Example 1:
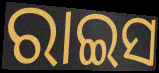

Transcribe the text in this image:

ରାଇସ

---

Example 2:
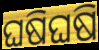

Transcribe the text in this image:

ଘଷିଘଷି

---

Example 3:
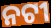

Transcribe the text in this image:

ନଟୀ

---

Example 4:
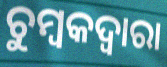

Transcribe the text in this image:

ଚୁମ୍ବକଦ୍ବାରା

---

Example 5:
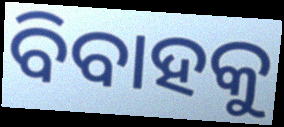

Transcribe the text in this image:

ବିବାହକୁ